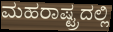
ಮಹರಾಷ್ಟ್ರದಲ್ಲಿ